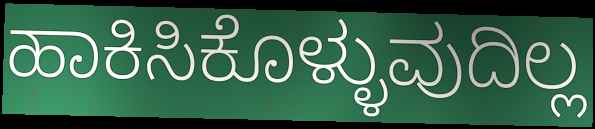
ಹಾಕಿಸಿಕೊಳ್ಳುವುದಿಲ್ಲ